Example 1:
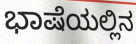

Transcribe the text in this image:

ಭಾಷೆಯಲ್ಲಿನ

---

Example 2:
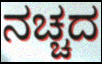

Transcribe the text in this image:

ನಚ್ಚದ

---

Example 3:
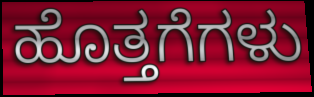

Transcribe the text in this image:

ಹೊತ್ತಗೆಗಳು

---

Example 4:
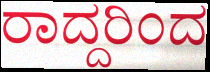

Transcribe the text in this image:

ರಾದ್ದರಿಂದ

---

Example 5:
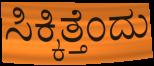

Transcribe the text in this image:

ಸಿಕ್ಕಿತ್ತೆಂದು